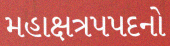
મહાક્ષત્રપપદનો